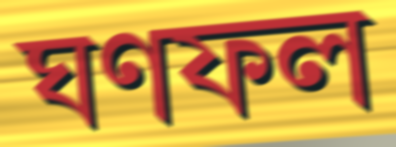
ঘণফল